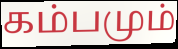
கம்பமும்